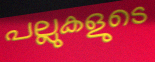
പല്ലുകളുടെ